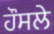
ਹੌਸਲੇ